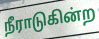
நீராடுகின்ற